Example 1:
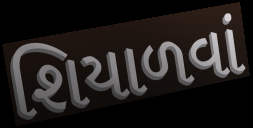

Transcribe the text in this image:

શિયાળવાં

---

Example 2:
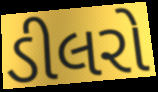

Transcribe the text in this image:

ડીલરો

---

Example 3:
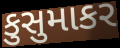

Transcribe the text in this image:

કુસુમાકર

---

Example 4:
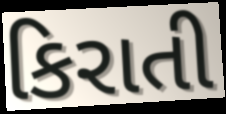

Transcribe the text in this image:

કિરાતી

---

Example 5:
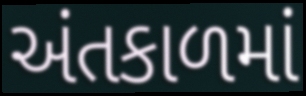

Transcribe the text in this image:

અંતકાળમાં